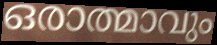
ഒരാത്മാവും